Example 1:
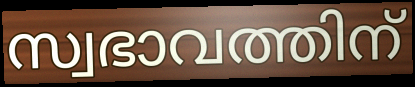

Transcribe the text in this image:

സ്വഭാവത്തിന്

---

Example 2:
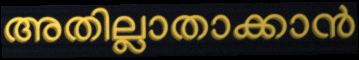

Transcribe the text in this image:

അതില്ലാതാക്കാൻ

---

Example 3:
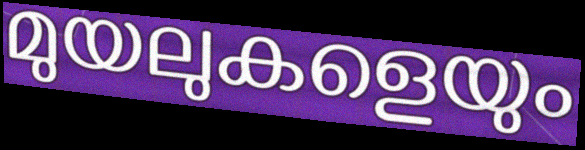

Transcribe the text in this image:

മുയലുകളെയും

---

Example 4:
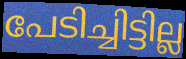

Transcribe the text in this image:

പേടിച്ചിട്ടില്ല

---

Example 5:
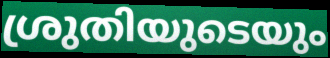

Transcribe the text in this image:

ശ്രുതിയുടെയും